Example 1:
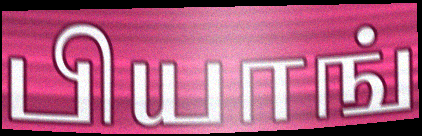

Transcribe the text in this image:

பியாங்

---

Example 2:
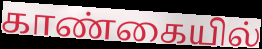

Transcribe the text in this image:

காண்கையில்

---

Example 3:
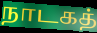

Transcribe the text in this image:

நாடகத்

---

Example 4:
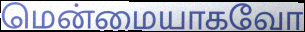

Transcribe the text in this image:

மென்மையாகவோ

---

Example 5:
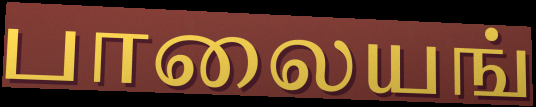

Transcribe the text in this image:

பாலையங்